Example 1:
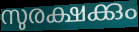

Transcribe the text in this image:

സുരക്ഷക്കും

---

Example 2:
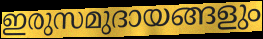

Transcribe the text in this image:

ഇരുസമുദായങ്ങളും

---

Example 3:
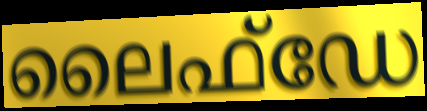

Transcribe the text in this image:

ലൈഫ്ഡേ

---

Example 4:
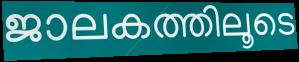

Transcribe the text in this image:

ജാലകത്തിലൂടെ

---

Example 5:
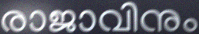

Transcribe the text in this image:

രാജാവിനും